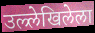
उल्लेखिलेला